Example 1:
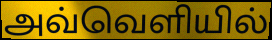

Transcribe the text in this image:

அவ்வெளியில்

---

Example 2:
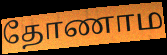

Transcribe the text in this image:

தோணாம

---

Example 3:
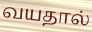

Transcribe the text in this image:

வயதால்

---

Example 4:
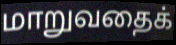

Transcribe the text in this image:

மாறுவதைக்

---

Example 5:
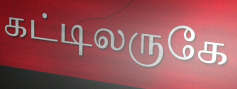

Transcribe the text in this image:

கட்டிலருகே